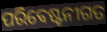
ପରିବେଷ୍ଟନୀଗତ